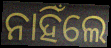
ନାହିଁଲେ